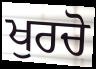
ਖੁਰਚੋ